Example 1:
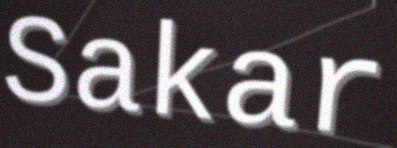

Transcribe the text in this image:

Sakar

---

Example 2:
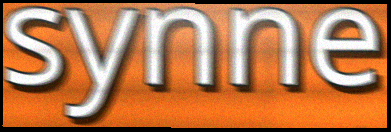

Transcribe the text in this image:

synne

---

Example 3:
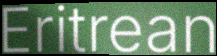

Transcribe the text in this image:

Eritrean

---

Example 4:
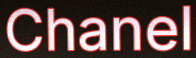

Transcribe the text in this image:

Chanel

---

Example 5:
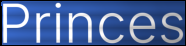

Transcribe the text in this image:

Princes